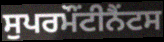
ਸੁਪਰਮੌਂਟੀਨੈਂਟਸ